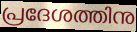
പ്രദേശത്തിനു